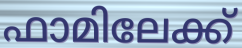
ഫാമിലേക്ക്